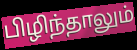
பிழிந்தாலும்